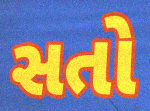
સતો